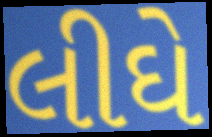
લીઘે